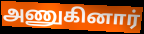
அணுகினார்